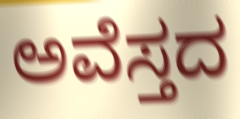
ಅವೆಸ್ತದ